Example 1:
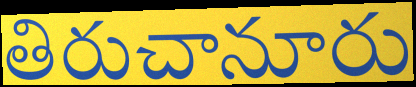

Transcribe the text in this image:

తిరుచానూరు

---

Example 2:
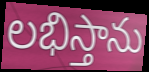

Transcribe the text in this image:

లభిస్తాను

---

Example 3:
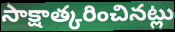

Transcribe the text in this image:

సాక్షాత్కరించినట్లు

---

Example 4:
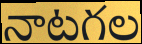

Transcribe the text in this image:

నాటగల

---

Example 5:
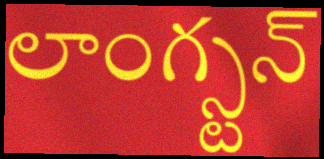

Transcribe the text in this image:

లాంగ్స్టన్